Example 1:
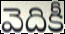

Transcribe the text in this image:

వెదికీ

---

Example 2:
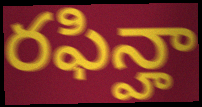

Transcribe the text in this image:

రఫిన్హా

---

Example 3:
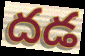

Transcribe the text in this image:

దడ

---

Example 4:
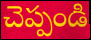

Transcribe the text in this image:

చెప్పండి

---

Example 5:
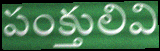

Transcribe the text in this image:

పంక్తులివి